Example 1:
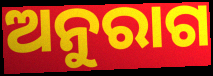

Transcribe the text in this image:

ଅନୁରାଗ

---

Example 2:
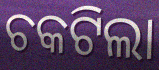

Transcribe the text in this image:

ଚକଟିଲା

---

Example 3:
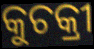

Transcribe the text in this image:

କୁଚକ୍ରୀ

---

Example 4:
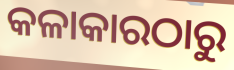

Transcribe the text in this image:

କଳାକାରଠାରୁ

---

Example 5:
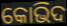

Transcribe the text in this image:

କୋଭିଦ